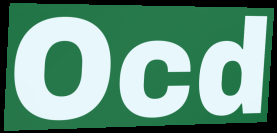
Ocd